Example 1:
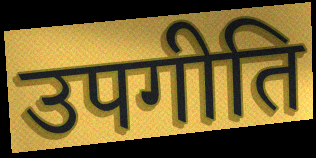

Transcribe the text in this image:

उपगीति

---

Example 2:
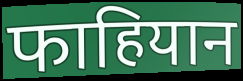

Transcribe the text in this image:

फाहियान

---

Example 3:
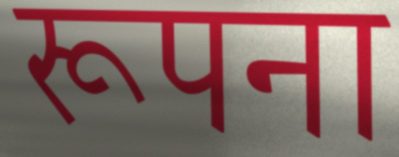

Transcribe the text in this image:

रूपना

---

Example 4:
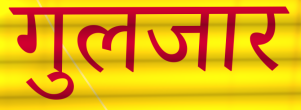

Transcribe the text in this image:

गुलजार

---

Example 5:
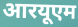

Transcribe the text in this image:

आरयूएम